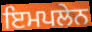
ਇਮਪਲੇਨ